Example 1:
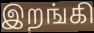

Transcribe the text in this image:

இறங்கி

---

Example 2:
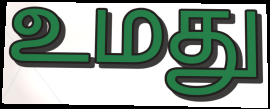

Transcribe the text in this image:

உமது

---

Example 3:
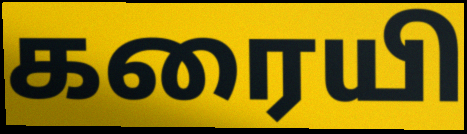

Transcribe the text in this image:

கரையி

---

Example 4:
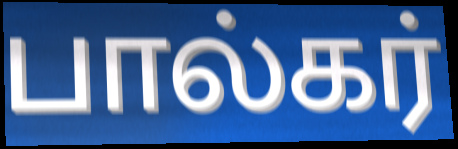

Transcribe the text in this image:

பால்கர்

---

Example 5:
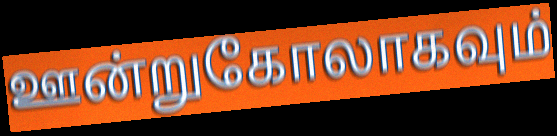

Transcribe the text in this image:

ஊன்றுகோலாகவும்